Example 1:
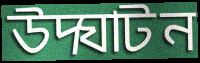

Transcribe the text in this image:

উদ্ঘাটন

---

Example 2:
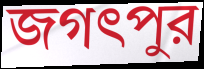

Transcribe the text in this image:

জগৎপুর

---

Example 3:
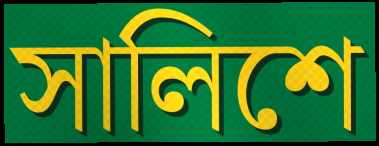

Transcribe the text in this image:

সালিশে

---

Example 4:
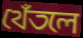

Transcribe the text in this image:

থেঁতলে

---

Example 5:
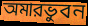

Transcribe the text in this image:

অমারভুবন